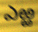
ఎఱ్ఱ